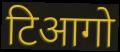
टिआगो